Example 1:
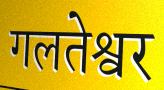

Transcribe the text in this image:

गलतेश्वर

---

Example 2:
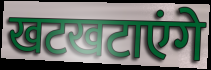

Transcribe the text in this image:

खटखटाएंगे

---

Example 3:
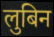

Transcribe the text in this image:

लुबिन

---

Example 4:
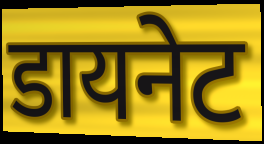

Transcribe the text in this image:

डायनेट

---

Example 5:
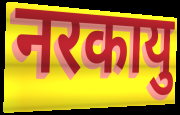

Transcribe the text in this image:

नरकायु